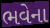
ભવેના